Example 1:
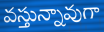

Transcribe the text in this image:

వస్తున్నావుగా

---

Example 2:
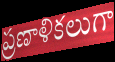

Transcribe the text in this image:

ప్రణాళికలుగా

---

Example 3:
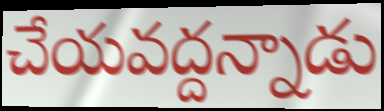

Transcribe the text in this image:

చేయవద్దన్నాడు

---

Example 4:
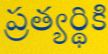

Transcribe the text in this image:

ప్రత్యర్థికి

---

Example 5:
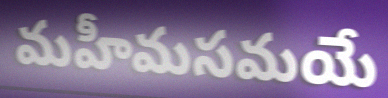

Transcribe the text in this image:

మహీమసమయే